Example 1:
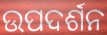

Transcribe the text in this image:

ଉପଦର୍ଶନ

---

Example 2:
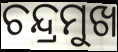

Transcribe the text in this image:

ଚନ୍ଦ୍ରମୁଖ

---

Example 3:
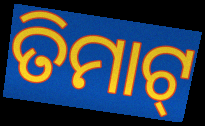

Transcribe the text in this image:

ତିମାଟ୍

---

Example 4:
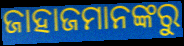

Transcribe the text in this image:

ଜାହାଜମାନଙ୍କରୁ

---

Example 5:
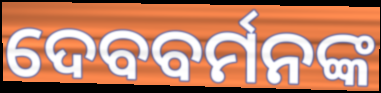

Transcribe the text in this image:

ଦେବବର୍ମନଙ୍କ